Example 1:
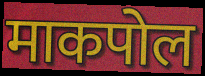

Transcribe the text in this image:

माकपोल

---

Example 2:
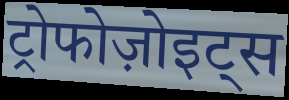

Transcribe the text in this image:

ट्रोफोज़ोइट्स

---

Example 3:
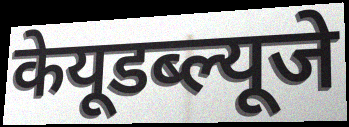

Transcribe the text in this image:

केयूडब्ल्यूजे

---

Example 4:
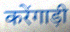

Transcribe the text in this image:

करेंगाड़ी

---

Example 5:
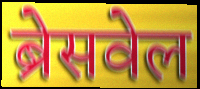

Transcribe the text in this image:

ब्रेसवेल